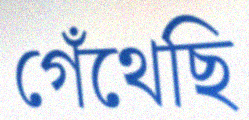
গেঁথেছি